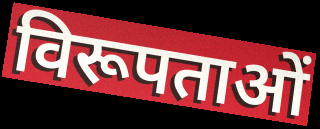
विरूपताओं